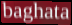
baghata